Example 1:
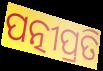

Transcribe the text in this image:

ପତ୍ନୀପ୍ରତି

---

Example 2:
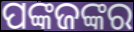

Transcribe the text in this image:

ପଙ୍କଜଙ୍କର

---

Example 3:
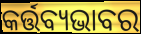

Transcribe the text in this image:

କର୍ତ୍ତବ୍ୟଭାବର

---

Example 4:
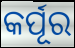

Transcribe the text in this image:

କର୍ପୂର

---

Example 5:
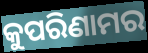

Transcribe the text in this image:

କୁପରିଣାମର